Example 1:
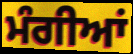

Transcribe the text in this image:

ਮੰਗੀਆਂ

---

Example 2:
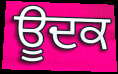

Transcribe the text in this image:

ਊਦਕ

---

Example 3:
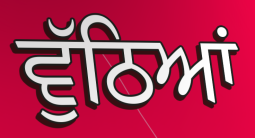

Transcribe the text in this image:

ਵੁੱਠਿਆਂ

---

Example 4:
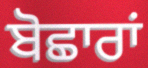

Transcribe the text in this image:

ਬੋਛਾਰਾਂ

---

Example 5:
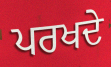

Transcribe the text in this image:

ਪਰਖਦੇ